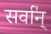
सर्वा॑न्